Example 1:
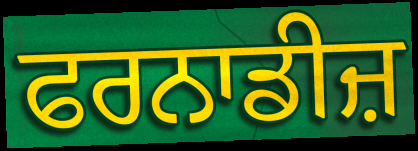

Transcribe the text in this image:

ਫਰਨਾਡੀਜ਼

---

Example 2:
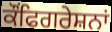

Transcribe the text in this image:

ਕੌਂਫਿਗਰੇਸ਼ਨਾਂ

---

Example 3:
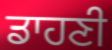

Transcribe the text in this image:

ਡਾਹਣੀ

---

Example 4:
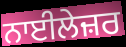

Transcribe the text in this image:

ਨਾਈਲੇਜ਼ਰ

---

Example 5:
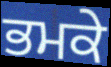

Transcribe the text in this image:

ਭਮਕੇ